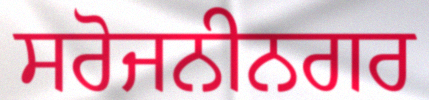
ਸਰੋਜਨੀਨਗਰ